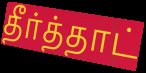
தீர்த்தாட்